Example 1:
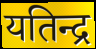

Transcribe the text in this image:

यतिन्द्र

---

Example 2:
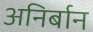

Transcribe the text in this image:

अनिर्बान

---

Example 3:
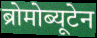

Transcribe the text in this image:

ब्रोमोब्यूटेन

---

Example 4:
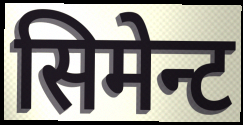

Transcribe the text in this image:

सिमेन्ट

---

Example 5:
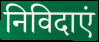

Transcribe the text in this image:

निविदाएं